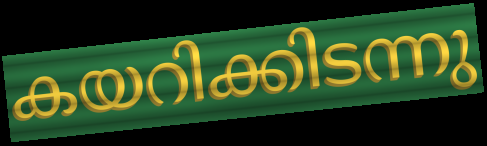
കയറിക്കിടന്നു